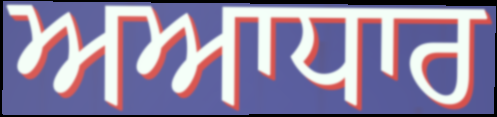
ਅਆਧਾਰ